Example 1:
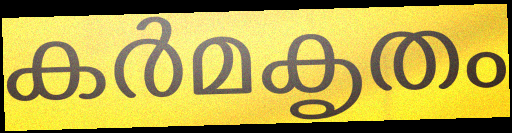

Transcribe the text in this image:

കർമകൃതം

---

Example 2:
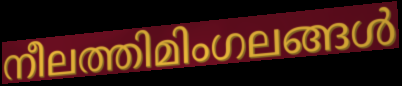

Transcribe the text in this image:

നീലത്തിമിംഗലങ്ങൾ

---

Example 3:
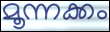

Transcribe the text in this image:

മൂന്നക്കം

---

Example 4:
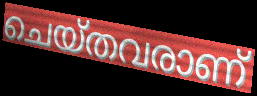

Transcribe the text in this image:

ചെയ്തവരാണ്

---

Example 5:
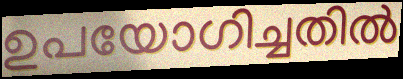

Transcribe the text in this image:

ഉപയോഗിച്ചതിൽ